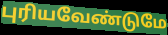
புரியவேண்டுமே